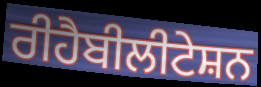
ਰੀਹੈਬੀਲੀਟੇਸ਼ਨ